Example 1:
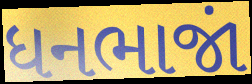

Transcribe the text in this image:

ધનભાજાં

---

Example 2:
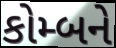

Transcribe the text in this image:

કોમ્બને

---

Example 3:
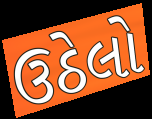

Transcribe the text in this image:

ઉઠેલો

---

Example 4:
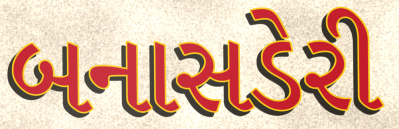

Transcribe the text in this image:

બનાસડેરી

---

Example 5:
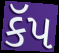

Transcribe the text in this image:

કૅપ